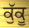
ਕੁੱਕੂ